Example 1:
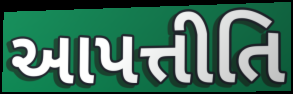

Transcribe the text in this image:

આપત્તીતિ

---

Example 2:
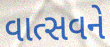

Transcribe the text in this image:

વાત્સવને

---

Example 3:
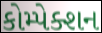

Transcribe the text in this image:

કોમ્પેક્શન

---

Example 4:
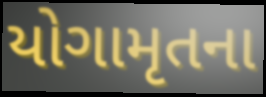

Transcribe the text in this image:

યોગામૃતના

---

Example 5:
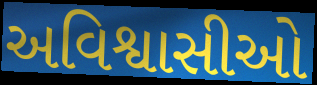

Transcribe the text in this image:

અવિશ્વાસીઓ